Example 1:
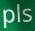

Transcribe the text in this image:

pls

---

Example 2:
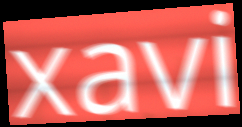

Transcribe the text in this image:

xavi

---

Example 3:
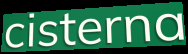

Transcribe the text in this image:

cisterna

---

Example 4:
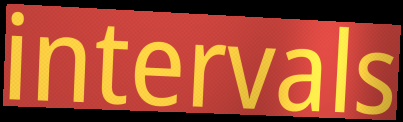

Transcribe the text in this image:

intervals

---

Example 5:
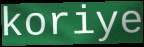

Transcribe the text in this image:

koriye